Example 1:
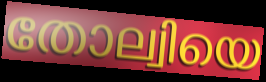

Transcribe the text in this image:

തോല്വിയെ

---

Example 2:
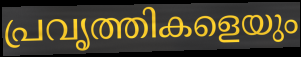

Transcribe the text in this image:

പ്രവൃത്തികളെയും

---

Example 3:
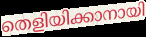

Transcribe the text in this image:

തെളിയിക്കാനായി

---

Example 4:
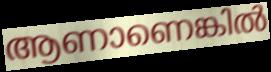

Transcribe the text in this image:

ആണാണെങ്കിൽ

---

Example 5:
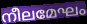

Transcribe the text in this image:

നീലമേഘം